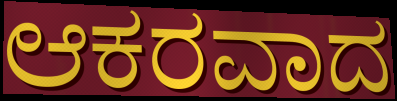
ಆಕರವಾದ